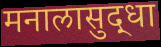
मनालासुद्धा